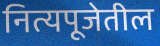
नित्यपूजेतील